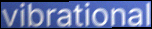
vibrational